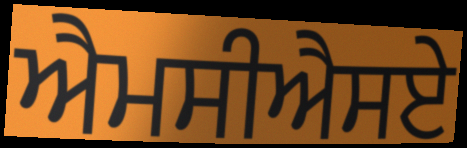
ਐਮਸੀਐਸਏ